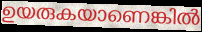
ഉയരുകയാണെങ്കിൽ